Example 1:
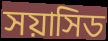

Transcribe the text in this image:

সয়াসিড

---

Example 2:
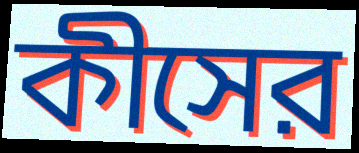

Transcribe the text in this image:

কীসের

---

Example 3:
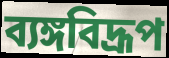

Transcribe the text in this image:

ব্যঙ্গবিদ্রূপ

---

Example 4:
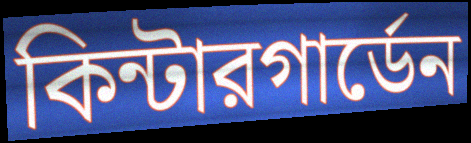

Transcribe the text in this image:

কিন্টারগার্ডেন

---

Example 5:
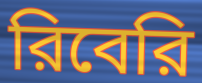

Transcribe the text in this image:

রিবেরি